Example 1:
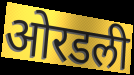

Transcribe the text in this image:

ओरडली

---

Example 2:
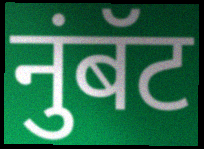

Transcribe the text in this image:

नुंबॅट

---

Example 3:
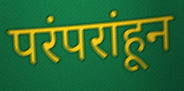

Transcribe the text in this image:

परंपरांहून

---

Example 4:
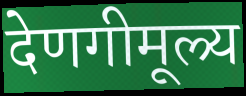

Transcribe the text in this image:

देणगीमूल्य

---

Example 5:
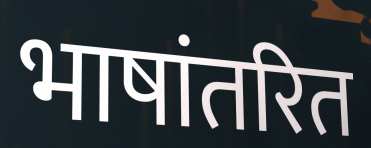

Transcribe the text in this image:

भाषांतरित